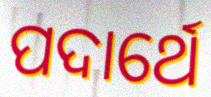
ପଦାର୍ଥେ